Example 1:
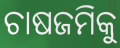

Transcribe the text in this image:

ଚାଷଜମିକୁ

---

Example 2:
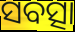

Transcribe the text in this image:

ସବତ୍ସା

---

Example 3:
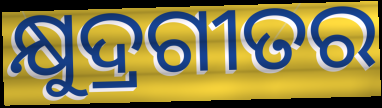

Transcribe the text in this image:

କ୍ଷୁଦ୍ରଗୀତର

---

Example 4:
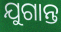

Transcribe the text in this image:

ଯୁଗାନ୍ତ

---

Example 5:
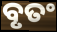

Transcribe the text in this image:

ବୃତଂ